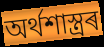
অৰ্থশাস্ত্ৰৰ